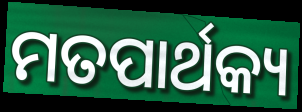
ମତପାର୍ଥକ୍ୟ